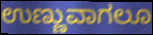
ಉಣ್ಣುವಾಗಲೂ